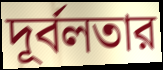
দূর্বলতার